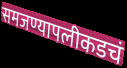
समजण्यापलीकडचं